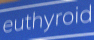
euthyroid